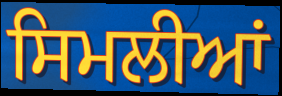
ਸਿਮਲੀਆਂ